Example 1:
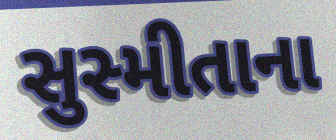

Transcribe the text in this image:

સુસ્મીતાના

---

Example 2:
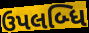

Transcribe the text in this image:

ઉપલબ્ધિ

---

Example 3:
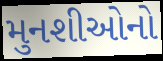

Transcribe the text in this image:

મુનશીઓનો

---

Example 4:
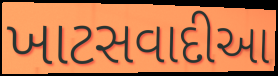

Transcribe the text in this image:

ખાટસવાદીઆ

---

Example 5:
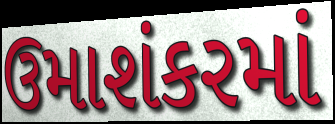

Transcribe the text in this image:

ઉમાશંકરમાં